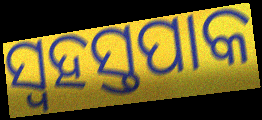
ସ୍ୱହସ୍ତପାକ